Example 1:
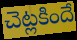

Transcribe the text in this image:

చెట్లకిందే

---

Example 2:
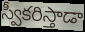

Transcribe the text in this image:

స్వీకరిస్తాడా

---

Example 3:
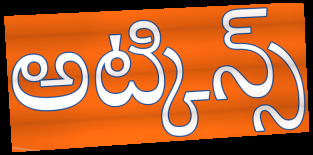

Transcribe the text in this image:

అట్కిన్స్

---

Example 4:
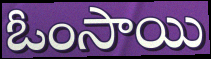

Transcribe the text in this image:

ఓంసాయి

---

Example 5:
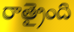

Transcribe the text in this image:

రాత్రైంది